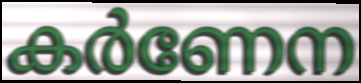
കർണേന